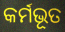
କର୍ମଭୂତ